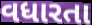
વધારતા